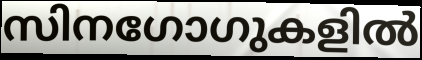
സിനഗോഗുകളിൽ